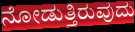
ನೋಡುತ್ತಿರುವುದು